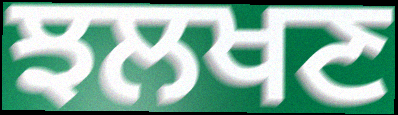
ਝਲਖਣ